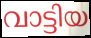
വാട്ടിയ